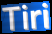
Tiri